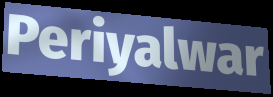
Periyalwar